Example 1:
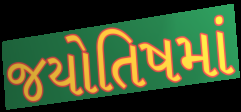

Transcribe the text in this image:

જયોતિષમાં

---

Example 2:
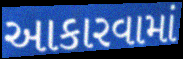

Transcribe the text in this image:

આકારવામાં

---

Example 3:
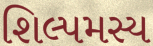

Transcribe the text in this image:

શિલ્પમસ્ય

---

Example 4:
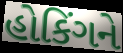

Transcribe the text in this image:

હોકિંગને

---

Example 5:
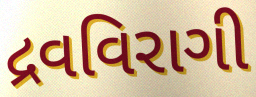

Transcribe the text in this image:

દ્રવવિરાગી